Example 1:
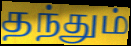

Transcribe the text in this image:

தந்தும்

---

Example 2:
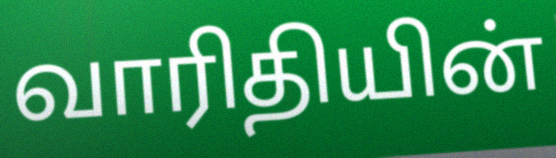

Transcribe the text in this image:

வாரிதியின்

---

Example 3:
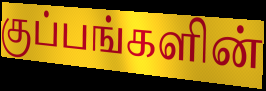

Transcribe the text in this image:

குப்பங்களின்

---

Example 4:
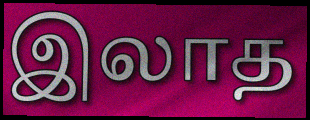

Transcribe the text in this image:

இலாத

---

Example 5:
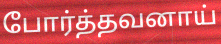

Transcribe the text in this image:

போர்த்தவனாய்